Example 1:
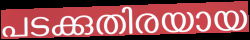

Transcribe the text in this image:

പടക്കുതിരയായ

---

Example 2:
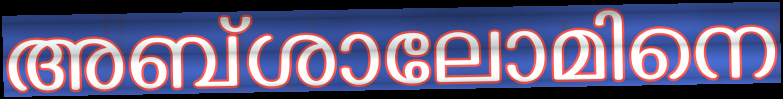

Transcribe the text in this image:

അബ്ശാലോമിനെ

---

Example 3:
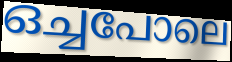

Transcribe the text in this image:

ഒച്ചപോലെ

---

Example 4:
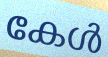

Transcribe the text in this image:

കേൾ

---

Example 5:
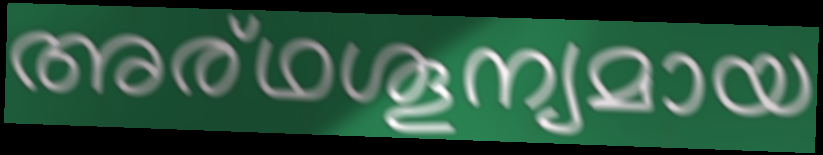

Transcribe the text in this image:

അര്ഥശൂന്യമായ